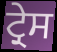
ਟ੍ਰੇਸ